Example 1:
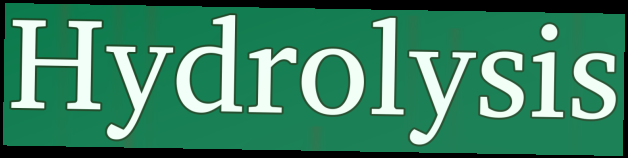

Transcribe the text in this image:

Hydrolysis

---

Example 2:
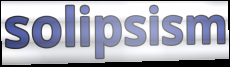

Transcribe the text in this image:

solipsism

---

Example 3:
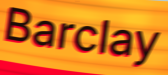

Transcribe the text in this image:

Barclay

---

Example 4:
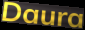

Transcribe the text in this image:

Daura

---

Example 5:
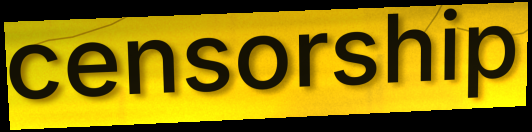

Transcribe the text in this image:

censorship